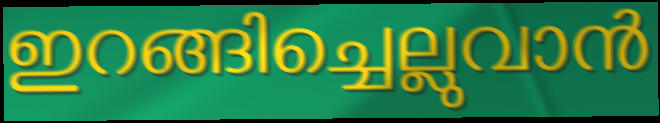
ഇറങ്ങിച്ചെല്ലുവാൻ